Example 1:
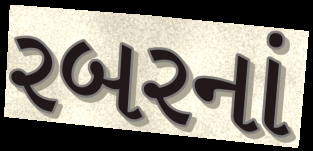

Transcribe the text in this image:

રબરનાં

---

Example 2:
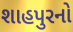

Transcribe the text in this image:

શાહપુરનો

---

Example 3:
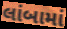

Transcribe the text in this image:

લાંબામાં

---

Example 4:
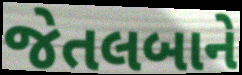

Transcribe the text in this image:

જેતલબાને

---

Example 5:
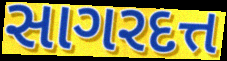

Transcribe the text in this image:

સાગરદત્ત